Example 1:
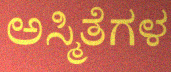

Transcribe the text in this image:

ಅಸ್ಮಿತೆಗಳ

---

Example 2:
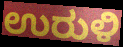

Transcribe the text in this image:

ಉರುಳಿ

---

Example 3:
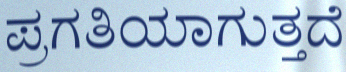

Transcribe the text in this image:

ಪ್ರಗತಿಯಾಗುತ್ತದೆ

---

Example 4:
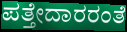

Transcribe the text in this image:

ಪತ್ತೇದಾರರಂತೆ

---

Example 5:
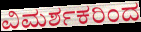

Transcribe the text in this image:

ವಿಮರ್ಶಕರಿಂದ